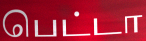
பெட்டா